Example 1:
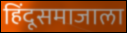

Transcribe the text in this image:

हिंदूसमाजाला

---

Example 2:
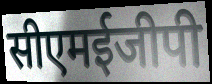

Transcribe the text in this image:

सीएमईजीपी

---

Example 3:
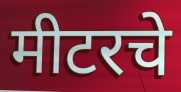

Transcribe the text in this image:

मीटरचे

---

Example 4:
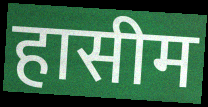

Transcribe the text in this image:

हासीम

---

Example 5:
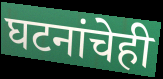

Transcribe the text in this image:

घटनांचेही